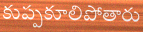
కుప్పకూలిపోతారు